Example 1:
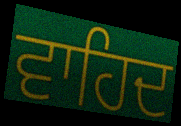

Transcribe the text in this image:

ਵਾਹਿਦ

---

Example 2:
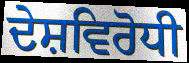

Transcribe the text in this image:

ਦੇਸ਼ਵਿਰੋਧੀ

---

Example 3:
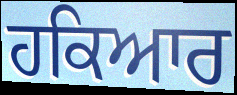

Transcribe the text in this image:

ਹਕਿਆਰ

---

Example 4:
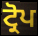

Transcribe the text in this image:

ਟ੍ਰੋਪ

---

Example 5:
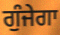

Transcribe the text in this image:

ਗੁੰਜੇਗਾ